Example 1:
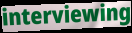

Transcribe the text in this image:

interviewing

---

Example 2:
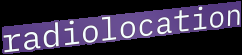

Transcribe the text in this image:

radiolocation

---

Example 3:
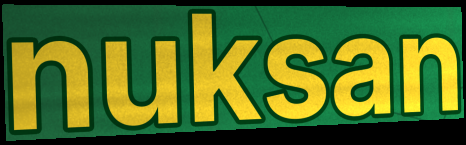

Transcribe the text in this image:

nuksan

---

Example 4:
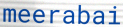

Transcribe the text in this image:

meerabai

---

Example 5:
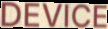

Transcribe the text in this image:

DEVICE